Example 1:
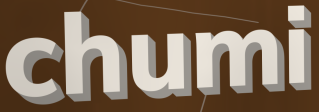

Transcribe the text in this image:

chumi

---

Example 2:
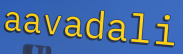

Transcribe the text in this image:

aavadali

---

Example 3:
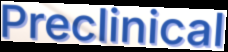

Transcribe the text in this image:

Preclinical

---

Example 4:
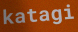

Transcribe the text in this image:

katagi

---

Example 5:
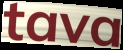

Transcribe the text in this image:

tava